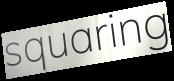
squaring